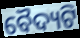
ବୈଦ୍ୟଟି